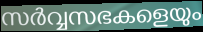
സർവ്വസഭകളെയും